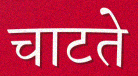
चाटते